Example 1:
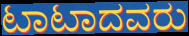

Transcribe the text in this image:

ಟಾಟಾದವರು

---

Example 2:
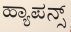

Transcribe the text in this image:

ಹ್ಯಾಪನ್ಸ್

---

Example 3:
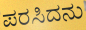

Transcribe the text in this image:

ಪರಸಿದನು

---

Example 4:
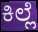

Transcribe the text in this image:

ಕಿಲ್ಲೆ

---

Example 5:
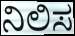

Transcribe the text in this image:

ನಿಲಿಸ